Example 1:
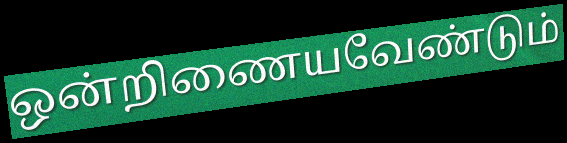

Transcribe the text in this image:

ஒன்றிணையவேண்டும்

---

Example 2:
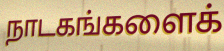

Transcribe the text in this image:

நாடகங்களைக்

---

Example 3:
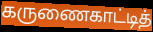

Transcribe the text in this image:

கருணைகாட்டித்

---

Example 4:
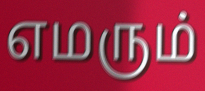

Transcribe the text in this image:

எமரும்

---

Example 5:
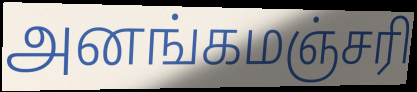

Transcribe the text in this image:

அனங்கமஞ்சரி